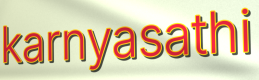
karnyasathi